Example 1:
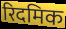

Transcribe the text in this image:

रिदमिक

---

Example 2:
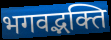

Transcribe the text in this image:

भगवद्भक्ति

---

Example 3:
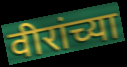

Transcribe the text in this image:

वीरांच्या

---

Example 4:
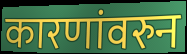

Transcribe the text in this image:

कारणांवरुन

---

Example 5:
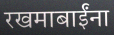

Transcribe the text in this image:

रखमाबाईंना